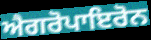
ਐਗਰੋਪਾਇਰੋਨ